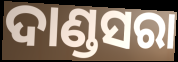
ଦାଣ୍ଡସରା